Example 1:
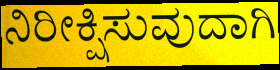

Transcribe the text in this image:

ನಿರೀಕ್ಷಿಸುವುದಾಗಿ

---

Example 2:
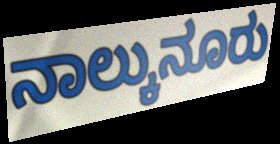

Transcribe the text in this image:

ನಾಲ್ಕುನೂರು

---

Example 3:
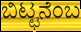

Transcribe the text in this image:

ಬಿಟ್ಟನೆಂಬ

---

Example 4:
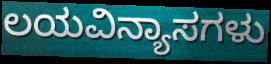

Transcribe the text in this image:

ಲಯವಿನ್ಯಾಸಗಳು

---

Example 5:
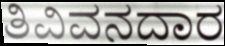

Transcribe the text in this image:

ತಿವಿವನದಾರ